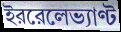
ইররেলেভ্যাণ্ট